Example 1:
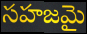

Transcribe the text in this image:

సహజమై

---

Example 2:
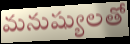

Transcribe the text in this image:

మనుష్యులతో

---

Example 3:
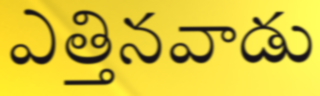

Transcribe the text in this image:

ఎత్తినవాడు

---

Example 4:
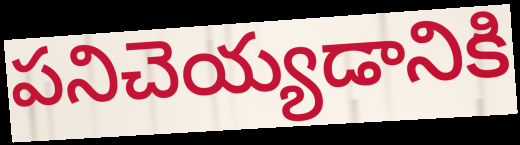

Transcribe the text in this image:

పనిచెయ్యడానికి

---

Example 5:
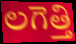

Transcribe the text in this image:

లగెత్తి